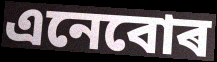
এনেবোৰ